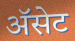
ॲसेट